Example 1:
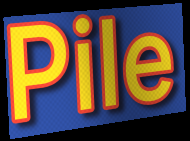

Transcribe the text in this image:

Pile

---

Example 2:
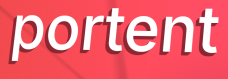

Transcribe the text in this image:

portent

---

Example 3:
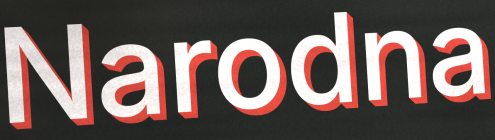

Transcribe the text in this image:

Narodna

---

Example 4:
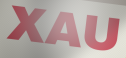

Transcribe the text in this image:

XAU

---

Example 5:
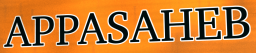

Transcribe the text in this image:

APPASAHEB